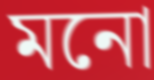
মনো